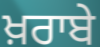
ਖ਼ਰਾਬੇ